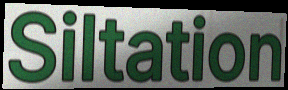
Siltation